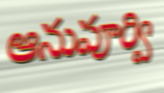
ఆనుపూర్వి